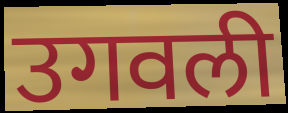
उगवली